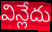
విన్లేదు